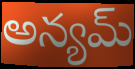
అన్యమ్